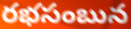
రభసంబున